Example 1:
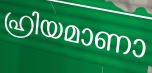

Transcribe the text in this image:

ഹ്രിയമാണാ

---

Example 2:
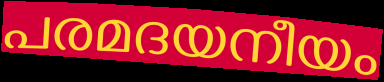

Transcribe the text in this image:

പരമദയനീയം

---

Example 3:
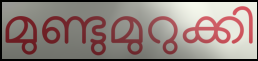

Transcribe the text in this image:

മുണ്ടുമുറുക്കി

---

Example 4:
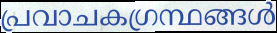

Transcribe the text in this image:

പ്രവാചകഗ്രന്ഥങ്ങൾ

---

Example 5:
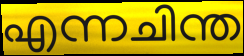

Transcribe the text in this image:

എന്നചിന്ത